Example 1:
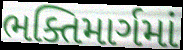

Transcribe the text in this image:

ભક્તિમાર્ગમાં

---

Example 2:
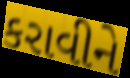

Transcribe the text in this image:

કરાવીને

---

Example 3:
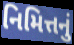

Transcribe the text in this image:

નિમિત્તનું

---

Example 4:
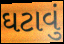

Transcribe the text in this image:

ઘટાવું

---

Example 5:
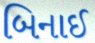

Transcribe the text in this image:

બિનાઈ